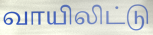
வாயிலிட்டு